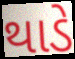
થાડે